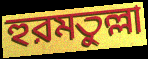
হুরমতুল্লা